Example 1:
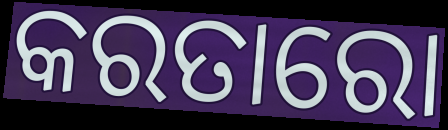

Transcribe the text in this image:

କରତାରୋ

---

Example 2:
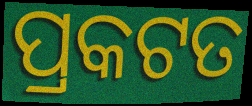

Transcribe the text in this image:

ପ୍ରକଟତ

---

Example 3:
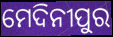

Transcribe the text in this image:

ମେଦିନୀପୁର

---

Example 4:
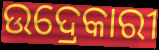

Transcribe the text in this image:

ଉଦ୍ରେକାରୀ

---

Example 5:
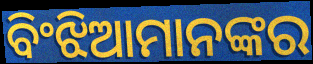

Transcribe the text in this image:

ବିଂଝିଆମାନଙ୍କର